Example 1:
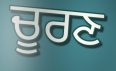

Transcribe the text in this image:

ਚੂਰਣ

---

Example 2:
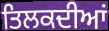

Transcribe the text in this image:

ਤਿਲਕਦੀਆਂ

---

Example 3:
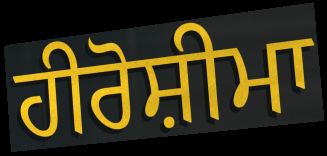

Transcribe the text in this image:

ਹੀਰੋਸ਼ੀਮਾ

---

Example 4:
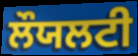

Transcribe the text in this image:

ਲੌਯਲਟੀ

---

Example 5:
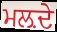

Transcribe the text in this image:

ਮਲ਼ਦੇ